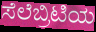
ಸೆಲೆಬ್ರಿಟಿಯ